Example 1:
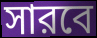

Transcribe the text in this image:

সারবে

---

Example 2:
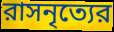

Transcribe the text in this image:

রাসনৃত্যের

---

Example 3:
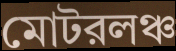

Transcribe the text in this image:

মোটরলঞ্চ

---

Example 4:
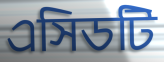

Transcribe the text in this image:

এসিডটি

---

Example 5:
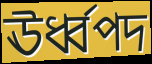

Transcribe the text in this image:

ঊর্ধ্বপদ